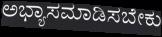
ಅಭ್ಯಾಸಮಾಡಿಸಬೇಕು